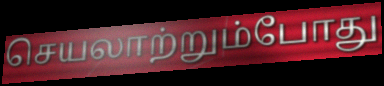
செயலாற்றும்போது